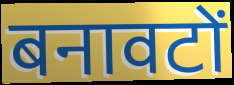
बनावटों